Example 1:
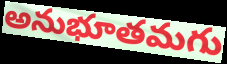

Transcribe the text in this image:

అనుభూతమగు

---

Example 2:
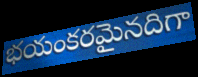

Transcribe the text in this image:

భయంకరమైనదిగా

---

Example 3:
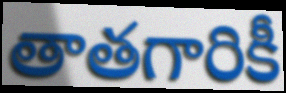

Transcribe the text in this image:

తాతగారికీ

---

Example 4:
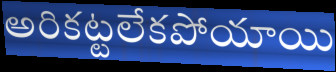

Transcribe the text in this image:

అరికట్టలేకపోయాయి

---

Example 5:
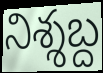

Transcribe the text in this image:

నిశ్శబ్ద